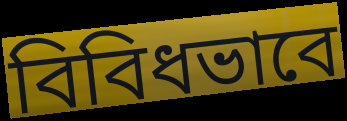
বিবিধভাবে